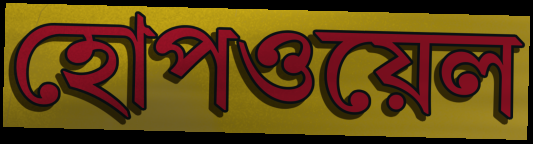
হোপওয়েল